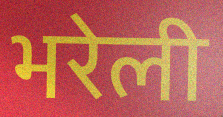
भरेली